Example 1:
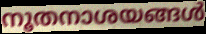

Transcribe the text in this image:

നൂതനാശയങ്ങൾ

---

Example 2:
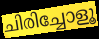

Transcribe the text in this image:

ചിരിച്ചോളൂ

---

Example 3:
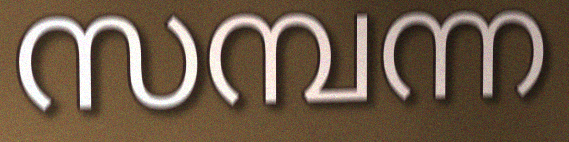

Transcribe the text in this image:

സമ്പന്ന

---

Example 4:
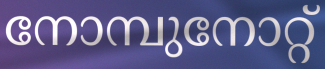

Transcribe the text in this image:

നോമ്പുനോറ്റ്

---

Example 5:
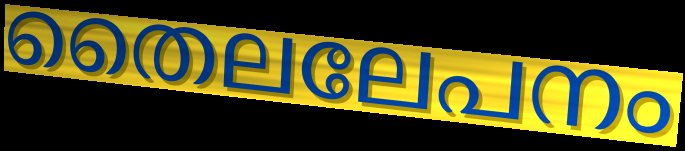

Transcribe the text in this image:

തൈലലേപനം